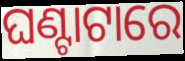
ଘଣ୍ଟାଟାରେ